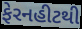
ફેરનહીટથી